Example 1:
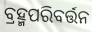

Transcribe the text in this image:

ବ୍ରହ୍ମପରିବର୍ତ୍ତନ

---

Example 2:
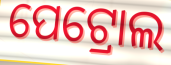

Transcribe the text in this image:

ପେଟ୍ରୋଲ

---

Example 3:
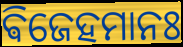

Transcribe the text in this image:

ଵିଜେହମାନଃ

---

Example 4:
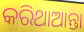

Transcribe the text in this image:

କରିଥାଆନ୍ତା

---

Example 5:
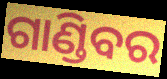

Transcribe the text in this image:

ଗାଣ୍ଡିବର